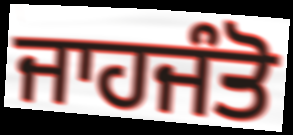
ਜਾਹਜੰਤੋ